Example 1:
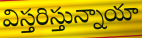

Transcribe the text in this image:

విస్తరిస్తున్నాయా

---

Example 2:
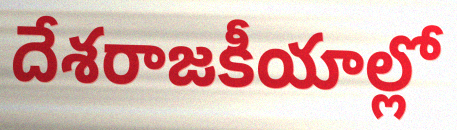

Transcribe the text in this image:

దేశరాజకీయాల్లో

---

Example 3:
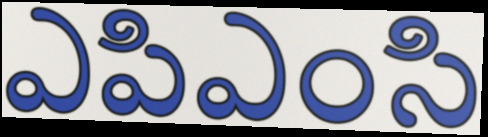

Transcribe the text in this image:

ఎపిఎంసి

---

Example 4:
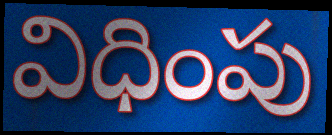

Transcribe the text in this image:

విధింపు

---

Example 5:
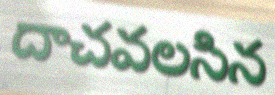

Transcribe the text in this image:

దాచవలసిన